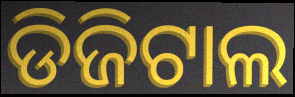
ଡିଜିଟାଲ